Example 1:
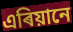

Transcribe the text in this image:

এৰিয়ানে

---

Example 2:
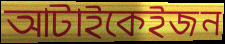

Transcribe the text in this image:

আটাইকেইজন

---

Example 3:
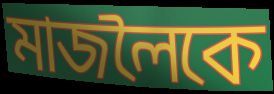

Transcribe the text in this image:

মাজলৈকে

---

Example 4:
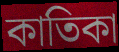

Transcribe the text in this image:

কাতিকা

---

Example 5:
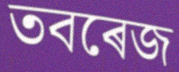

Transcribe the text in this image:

তবৰেজ